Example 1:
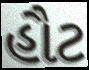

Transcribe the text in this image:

હૌટ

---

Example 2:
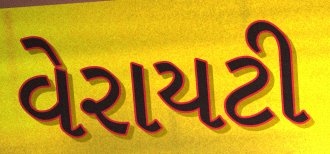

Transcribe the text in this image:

વેરાયટી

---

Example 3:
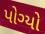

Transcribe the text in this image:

પોગ્યો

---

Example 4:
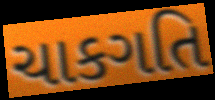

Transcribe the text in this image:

ચાકગતિ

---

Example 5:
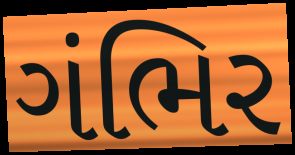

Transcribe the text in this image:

ગંભિર